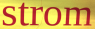
strom